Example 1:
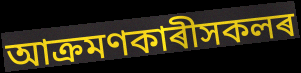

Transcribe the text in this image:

আক্ৰমণকাৰীসকলৰ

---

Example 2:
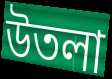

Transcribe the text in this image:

উতলা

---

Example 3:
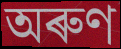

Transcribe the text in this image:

অৰুণ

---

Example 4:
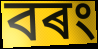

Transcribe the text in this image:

বৰং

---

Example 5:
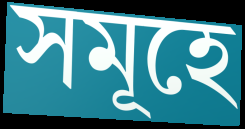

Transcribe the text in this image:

সমূহে